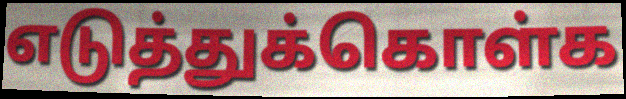
எடுத்துக்கொள்க